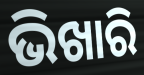
ଭିଖାରି